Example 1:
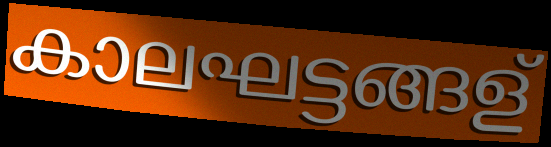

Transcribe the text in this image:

കാലഘട്ടങ്ങള്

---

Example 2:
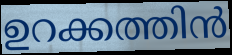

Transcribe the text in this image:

ഉറക്കത്തിൻ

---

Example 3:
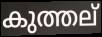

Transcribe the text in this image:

കുത്തല്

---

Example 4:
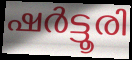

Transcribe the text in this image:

ഷർട്ടൂരി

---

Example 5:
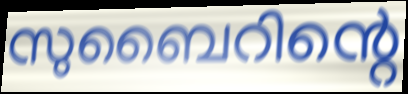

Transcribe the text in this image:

സുബൈറിന്റെ